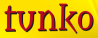
tunko